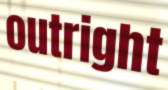
outright